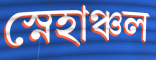
স্নেহাঞ্চল